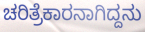
ಚರಿತ್ರೆಕಾರನಾಗಿದ್ದನು